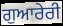
ਗੁਆਰੇਰੀ